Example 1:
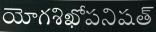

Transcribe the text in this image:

యోగశిఖోపనిషత్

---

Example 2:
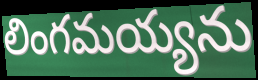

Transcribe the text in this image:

లింగమయ్యను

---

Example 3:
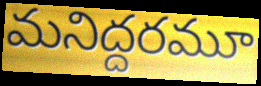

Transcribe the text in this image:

మనిద్దరమూ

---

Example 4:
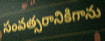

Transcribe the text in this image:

సంవత్సరానికిగాను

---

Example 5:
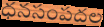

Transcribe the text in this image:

ధనసంపదల